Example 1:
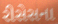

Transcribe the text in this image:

રીસેસના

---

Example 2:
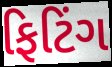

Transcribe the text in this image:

ફિટિંગ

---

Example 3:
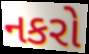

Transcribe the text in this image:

નકરો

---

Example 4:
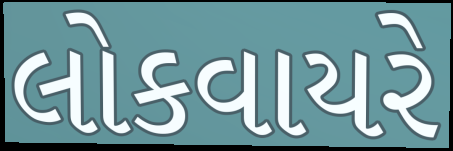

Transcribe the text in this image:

લોકવાયરે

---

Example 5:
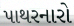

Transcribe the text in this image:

પાથરનારો